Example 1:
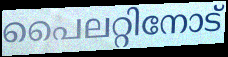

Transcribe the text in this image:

പൈലറ്റിനോട്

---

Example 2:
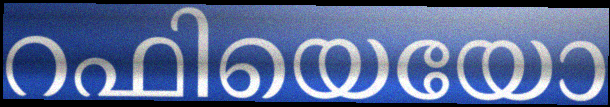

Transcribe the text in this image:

റഫിയെയോ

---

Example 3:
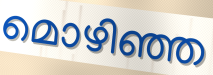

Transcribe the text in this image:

മൊഴിഞ്ഞ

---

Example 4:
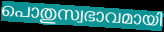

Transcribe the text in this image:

പൊതുസ്വഭാവമായി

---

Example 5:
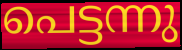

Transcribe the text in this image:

പെട്ടന്നു